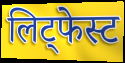
लिट्फेस्ट